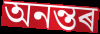
অনন্তৰ